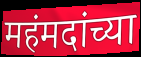
महंमदांच्या